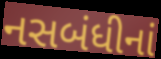
નસબંધીનાં